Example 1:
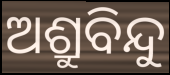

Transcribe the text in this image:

ଅଶ୍ରୁବିନ୍ଦୁ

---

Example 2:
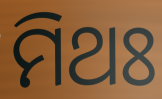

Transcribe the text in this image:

ମିଥଃ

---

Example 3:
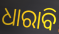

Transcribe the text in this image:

ଧାରାବି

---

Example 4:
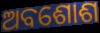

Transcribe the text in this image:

ଅବଶୋଶ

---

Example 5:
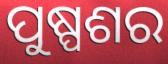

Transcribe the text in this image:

ପୁଷ୍ପଶର